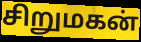
சிறுமகன்